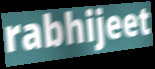
rabhijeet